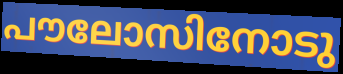
പൗലോസിനോടു